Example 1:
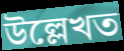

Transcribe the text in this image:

উল্লেখত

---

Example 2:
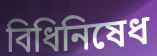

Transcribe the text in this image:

বিধিনিষেধ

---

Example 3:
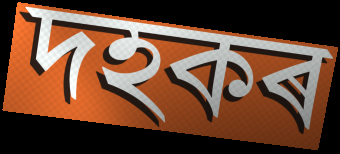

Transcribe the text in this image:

দহকৰ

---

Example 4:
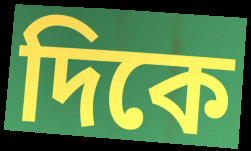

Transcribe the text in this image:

দিকে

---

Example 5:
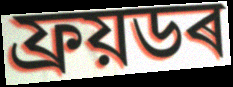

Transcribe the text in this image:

ফ্ৰয়ডৰ